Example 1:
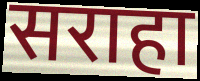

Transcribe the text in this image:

सराहा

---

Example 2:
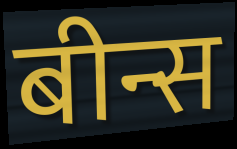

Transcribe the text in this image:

बीन्स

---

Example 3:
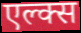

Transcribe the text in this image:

एल्क्स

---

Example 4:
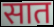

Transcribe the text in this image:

सात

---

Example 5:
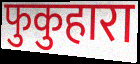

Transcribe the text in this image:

फुकुहारा